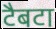
टैबटा